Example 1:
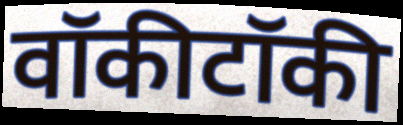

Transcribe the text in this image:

वॉकीटॉकी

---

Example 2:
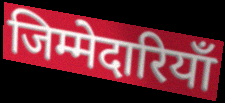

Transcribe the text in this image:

जिम्मेदारियाँ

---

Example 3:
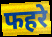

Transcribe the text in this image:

फहरे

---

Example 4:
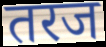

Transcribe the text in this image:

तरज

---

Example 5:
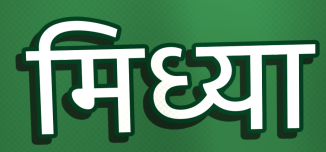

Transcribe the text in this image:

मिध्या